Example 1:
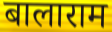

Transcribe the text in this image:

बालाराम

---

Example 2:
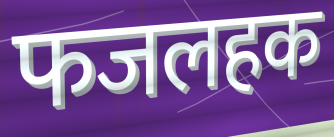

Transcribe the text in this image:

फजलहक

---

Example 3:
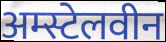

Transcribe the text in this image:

अम्स्टेलवीन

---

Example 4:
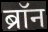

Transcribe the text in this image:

ब्रॉन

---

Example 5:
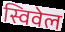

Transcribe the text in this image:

स्विवेल